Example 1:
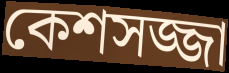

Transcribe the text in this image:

কেশসজ্জা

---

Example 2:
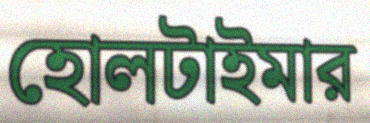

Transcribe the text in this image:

হোলটাইমার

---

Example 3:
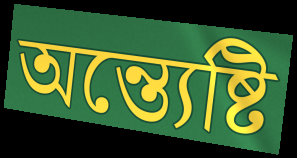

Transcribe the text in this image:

অন্ত্যেষ্টি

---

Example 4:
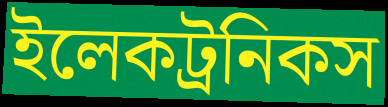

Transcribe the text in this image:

ইলেকট্রনিকস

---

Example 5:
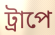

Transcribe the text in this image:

ট্রাপে